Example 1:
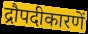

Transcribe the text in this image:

द्रौपदीकारणें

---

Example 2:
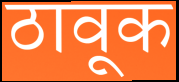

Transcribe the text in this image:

ठावूक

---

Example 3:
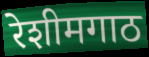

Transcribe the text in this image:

रेशीमगाठ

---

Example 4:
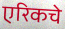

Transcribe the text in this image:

एरिकचे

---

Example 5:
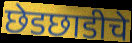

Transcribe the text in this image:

छेडछाडीचे